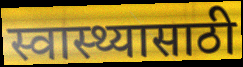
स्वास्थ्यासाठी